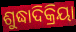
ଶୁଦ୍ଧାଦିକ୍ରିୟା